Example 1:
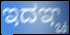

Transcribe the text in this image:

ಇದಞ್ಚ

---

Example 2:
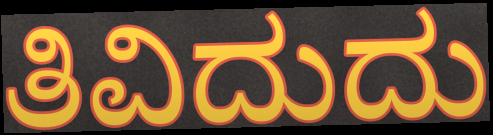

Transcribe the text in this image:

ತಿವಿದುದು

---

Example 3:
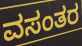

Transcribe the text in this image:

ವಸಂತರ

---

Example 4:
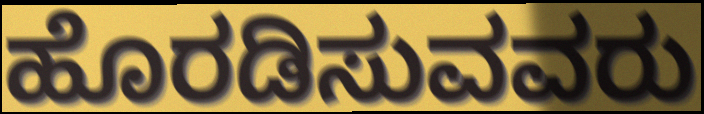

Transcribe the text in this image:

ಹೊರಡಿಸುವವರು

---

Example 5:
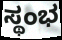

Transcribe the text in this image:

ಸ್ಥಂಭ